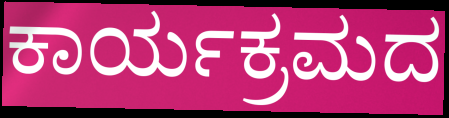
ಕಾರ್ಯಕ್ರಮದ